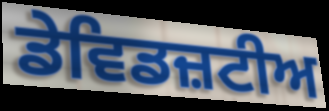
ਡੇਵਿਡਜ਼ਟੀਅ